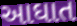
આઘાત